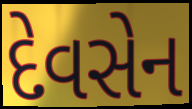
દેવસેન